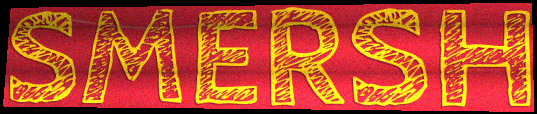
SMERSH